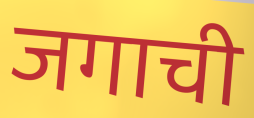
जगाची